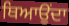
ਥਿਆਉਂਦਾ